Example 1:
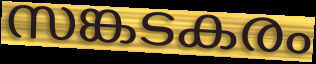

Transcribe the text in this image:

സങ്കടകരം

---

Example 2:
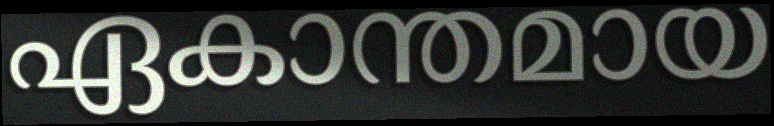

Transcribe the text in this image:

ഏകാന്തമായ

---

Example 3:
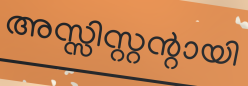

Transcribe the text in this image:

അസ്സിസ്റ്റന്റായി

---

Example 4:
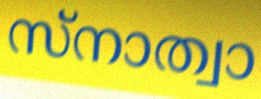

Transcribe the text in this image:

സ്നാത്വാ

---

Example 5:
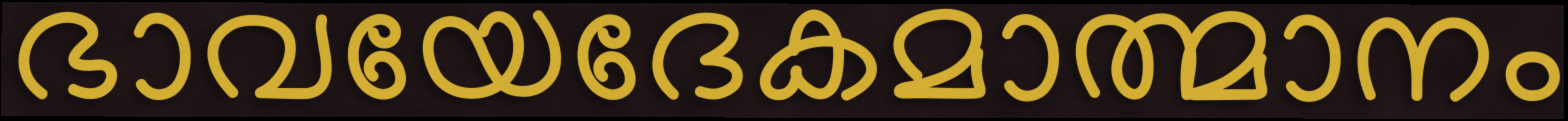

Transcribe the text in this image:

ഭാവയേദേകമാത്മാനം